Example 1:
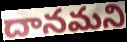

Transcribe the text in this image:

దానమని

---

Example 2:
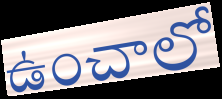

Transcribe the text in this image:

ఉంచాలో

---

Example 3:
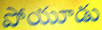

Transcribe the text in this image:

పోయూడు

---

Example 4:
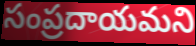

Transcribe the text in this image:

సంప్రదాయమని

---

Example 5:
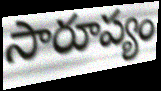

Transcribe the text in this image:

సారూప్యం